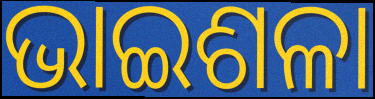
ଭାଇଶଳା